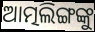
ଆତ୍ମଲିଙ୍ଗଙ୍କୁ